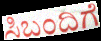
ಸಿಬಂದಿಗೆ